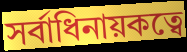
সর্বাধিনায়কত্বে